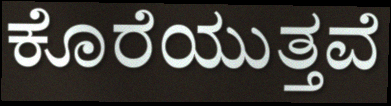
ಕೊರೆಯುತ್ತವೆ